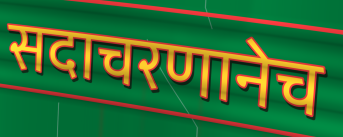
सदाचरणानेच